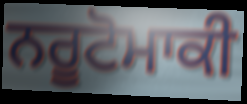
ਨਰੂਟੋਮਾਕੀ